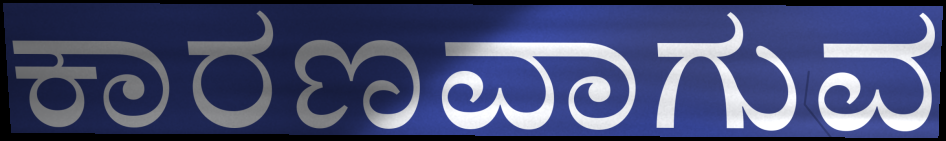
ಕಾರಣವಾಗುವ